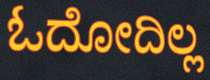
ಓದೋದಿಲ್ಲ